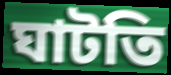
ঘাটতি